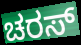
ಚರಸ್